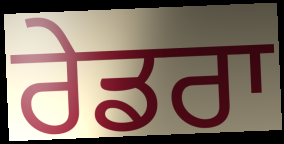
ਰੇਡਰਾ